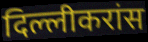
दिल्लीकरांस